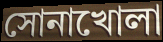
সোনাখোলা